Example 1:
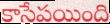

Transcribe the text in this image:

కాసేపయింది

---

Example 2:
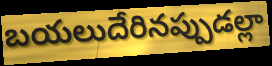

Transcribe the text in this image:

బయలుదేరినప్పుడల్లా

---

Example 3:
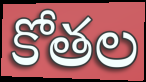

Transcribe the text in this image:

కోతల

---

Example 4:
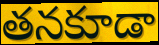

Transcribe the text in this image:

తనకూడా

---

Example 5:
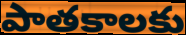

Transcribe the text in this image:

పాతకాలకు